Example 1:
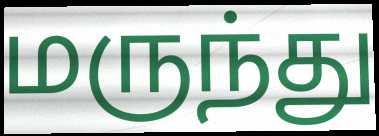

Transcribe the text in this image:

மருந்து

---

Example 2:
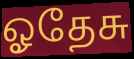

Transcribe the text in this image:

ஓதேசு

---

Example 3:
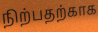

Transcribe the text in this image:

நிற்பதற்காக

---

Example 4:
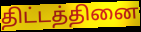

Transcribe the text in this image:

திட்டத்தினை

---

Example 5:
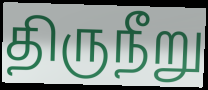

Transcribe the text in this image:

திருநீறு